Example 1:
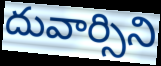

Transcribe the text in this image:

దువార్సిని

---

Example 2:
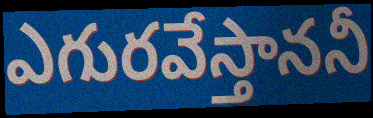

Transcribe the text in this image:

ఎగురవేస్తాననీ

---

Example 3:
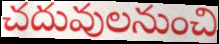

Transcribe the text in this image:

చదువులనుంచి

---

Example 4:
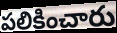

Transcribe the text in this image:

పలికించారు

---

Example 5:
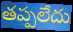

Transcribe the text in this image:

తప్పలేదు